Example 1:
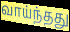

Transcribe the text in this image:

வாய்ந்தது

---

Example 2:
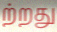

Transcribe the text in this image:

ற்றது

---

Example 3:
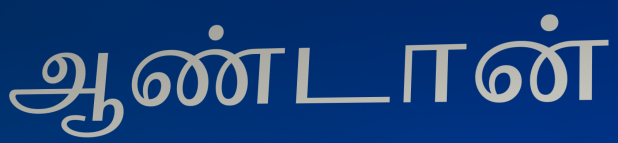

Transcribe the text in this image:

ஆண்டான்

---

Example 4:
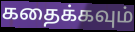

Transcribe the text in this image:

கதைக்கவும்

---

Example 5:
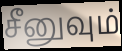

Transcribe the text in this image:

சீனுவும்